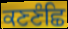
ਕਣਣੰਛਿ